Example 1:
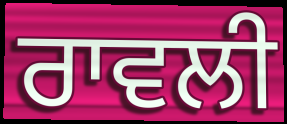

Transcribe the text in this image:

ਰਾਵਲੀ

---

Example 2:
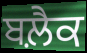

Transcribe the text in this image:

ਬਲ਼ੈਕ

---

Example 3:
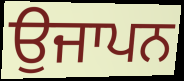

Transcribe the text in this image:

ਉਜਾਪਨ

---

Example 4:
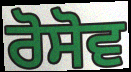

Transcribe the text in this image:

ਰੋਸੋਵ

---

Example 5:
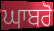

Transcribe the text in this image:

ਘਾਬਰੋ